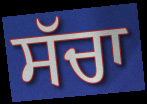
ਸੱਚਾ